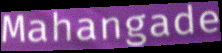
Mahangade